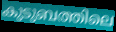
കുടുബത്തിലെ